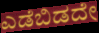
ಎಡೆಬಿಡದೇ